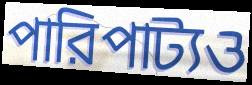
পারিপাট্যও